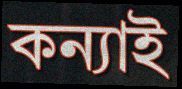
কন্যাই